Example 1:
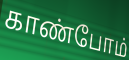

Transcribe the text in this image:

காண்போம்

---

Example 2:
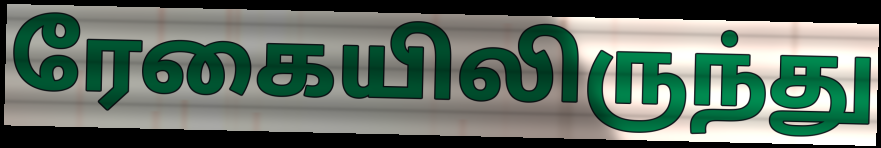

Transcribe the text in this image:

ரேகையிலிருந்து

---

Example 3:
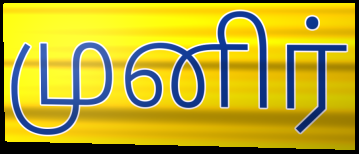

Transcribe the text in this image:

முனிர்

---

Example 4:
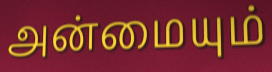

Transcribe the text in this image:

அன்மையும்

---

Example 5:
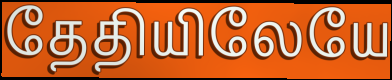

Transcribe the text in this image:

தேதியிலேயே